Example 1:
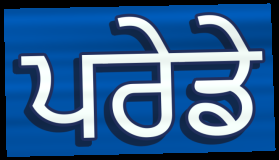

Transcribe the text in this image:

ਪਰੇਡੇ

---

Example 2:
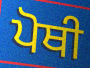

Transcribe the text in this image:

ਪੋਥੀ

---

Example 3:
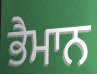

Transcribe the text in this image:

ਭੈਮਾਨ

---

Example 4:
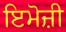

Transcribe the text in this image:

ਇਮੋਜ਼ੀ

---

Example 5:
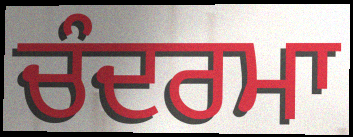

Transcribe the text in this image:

ਚੰਦਰਮਾ